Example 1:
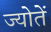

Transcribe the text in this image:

ज्योतें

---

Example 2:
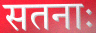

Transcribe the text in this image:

सतनाः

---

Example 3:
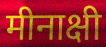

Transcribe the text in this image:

मीनाक्षी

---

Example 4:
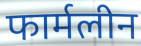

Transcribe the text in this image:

फार्मलीन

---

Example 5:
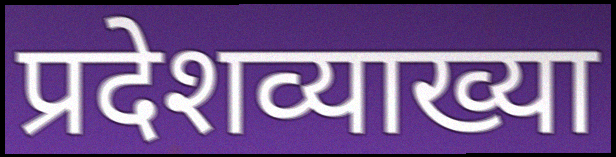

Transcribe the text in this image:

प्रदेशव्याख्या